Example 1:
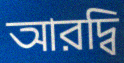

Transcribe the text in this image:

আরদ্বি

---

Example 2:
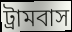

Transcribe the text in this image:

ট্রামবাস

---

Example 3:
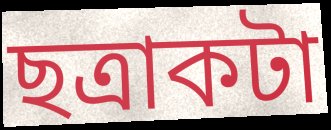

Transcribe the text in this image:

ছত্রাকটা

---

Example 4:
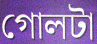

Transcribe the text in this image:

গোলটা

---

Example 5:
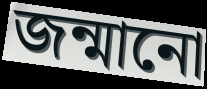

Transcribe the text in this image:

জন্মানো